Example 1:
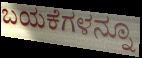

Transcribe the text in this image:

ಬಯಕೆಗಳನ್ನೂ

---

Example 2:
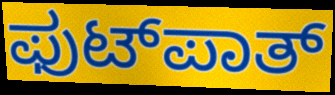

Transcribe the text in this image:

ಫುಟ್‍ಪಾತ್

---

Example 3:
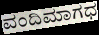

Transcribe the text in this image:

ವಂದಿಮಾಗಧ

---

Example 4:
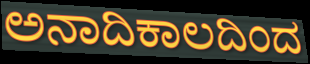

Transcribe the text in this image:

ಅನಾದಿಕಾಲದಿಂದ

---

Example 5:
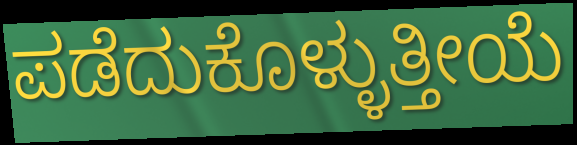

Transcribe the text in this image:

ಪಡೆದುಕೊಳ್ಳುತ್ತೀಯೆ